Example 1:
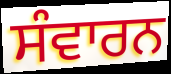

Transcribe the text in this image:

ਸੰਵਾਰਨ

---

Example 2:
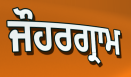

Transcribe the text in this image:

ਜੌਹਰਗ੍ਰਾਮ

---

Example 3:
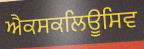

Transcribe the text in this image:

ਐਕਸਕਲਿਊਸਿਵ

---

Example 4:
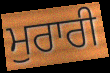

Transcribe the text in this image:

ਮੁਰਾਰੀ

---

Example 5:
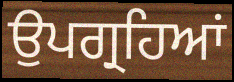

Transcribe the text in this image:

ਉਪਗ੍ਰਹਿਆਂ